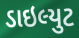
ડાઇલ્યુટ